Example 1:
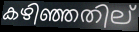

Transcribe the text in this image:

കഴിഞ്ഞതില്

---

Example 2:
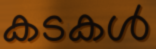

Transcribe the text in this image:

കടകൾ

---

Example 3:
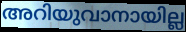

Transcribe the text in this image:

അറിയുവാനായില്ല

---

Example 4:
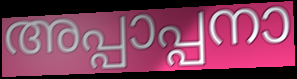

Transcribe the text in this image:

അപ്പാപ്പനാ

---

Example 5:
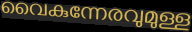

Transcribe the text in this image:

വൈകുന്നേരവുമുള്ള